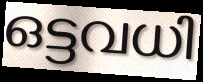
ഒട്ടവധി